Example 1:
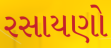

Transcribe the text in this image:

રસાયણો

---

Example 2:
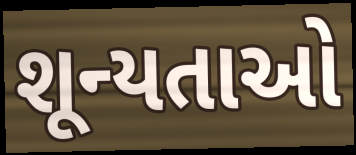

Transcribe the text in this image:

શૂન્યતાઓ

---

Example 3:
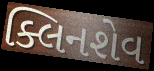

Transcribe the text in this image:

ક્લિનશેવ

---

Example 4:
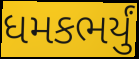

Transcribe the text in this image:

ધમકભર્યું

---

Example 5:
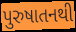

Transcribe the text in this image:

પુરુષાતનથી